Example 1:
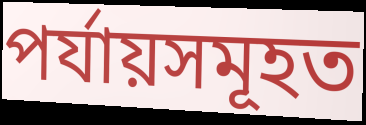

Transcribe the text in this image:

পৰ্যায়সমূহত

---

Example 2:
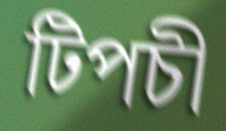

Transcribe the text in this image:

টিপচী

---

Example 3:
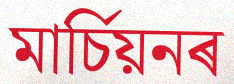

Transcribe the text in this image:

মাৰ্চিয়নৰ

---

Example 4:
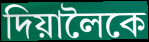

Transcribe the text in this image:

দিয়ালৈকে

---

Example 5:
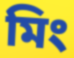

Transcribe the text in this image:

মিং